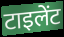
टाइलेंट